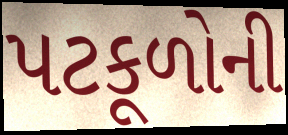
પટકૂળોની